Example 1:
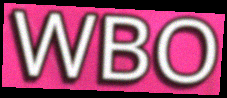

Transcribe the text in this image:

WBO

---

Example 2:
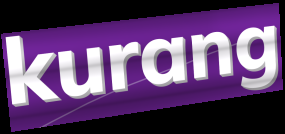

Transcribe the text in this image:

kurang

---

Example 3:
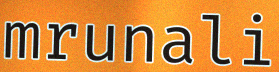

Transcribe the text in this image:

mrunali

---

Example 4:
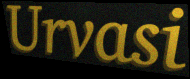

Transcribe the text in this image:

Urvasi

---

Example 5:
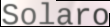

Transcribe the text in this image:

Solaro